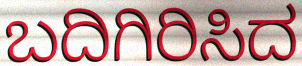
ಬದಿಗಿರಿಸಿದ